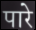
पारे